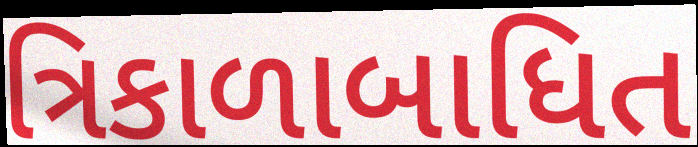
ત્રિકાળાબાધિત